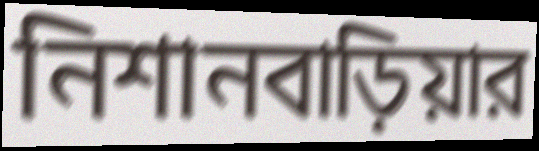
নিশানবাড়িয়ার